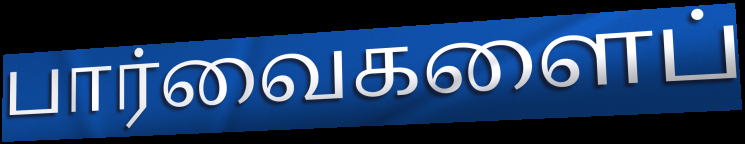
பார்வைகளைப்